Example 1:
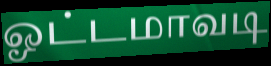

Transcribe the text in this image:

ஓட்டமாவடி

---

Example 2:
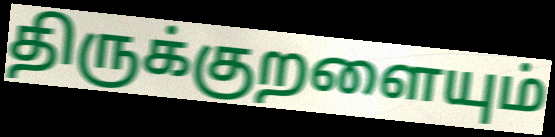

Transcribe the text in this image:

திருக்குறளையும்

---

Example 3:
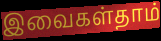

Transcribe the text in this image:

இவைகள்தாம்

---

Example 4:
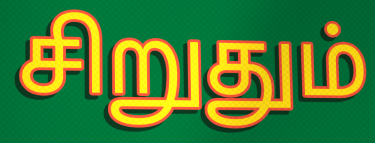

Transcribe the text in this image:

சிறுதும்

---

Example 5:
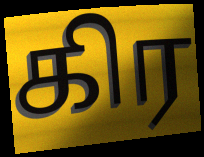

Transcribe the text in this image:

கிர